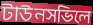
টাউনসভিলে